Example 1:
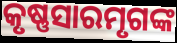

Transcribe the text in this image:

କୃଷ୍ଣସାରମୃଗଙ୍କ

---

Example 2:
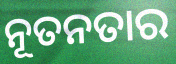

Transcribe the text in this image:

ନୂତନତାର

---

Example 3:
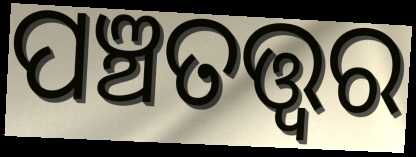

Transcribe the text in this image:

ପଞ୍ଚତତ୍ତ୍ୱର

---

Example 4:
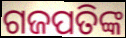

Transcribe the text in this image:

ଗଜପତିଙ୍କ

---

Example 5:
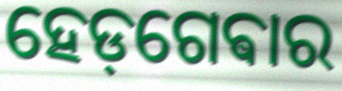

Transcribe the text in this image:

ହେଡ଼ଗେଵାର